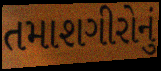
તમાશગીરોનું